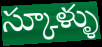
స్కూళ్ళు